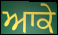
ਆਕੇ